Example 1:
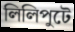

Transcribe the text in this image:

লিলিপুটে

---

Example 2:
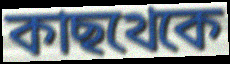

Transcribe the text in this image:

কাছথেকে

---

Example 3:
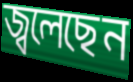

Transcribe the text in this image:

জ্বলেছেন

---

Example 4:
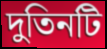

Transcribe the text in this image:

দুতিনটি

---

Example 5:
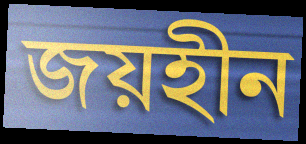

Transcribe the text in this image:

জয়হীন